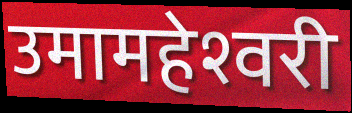
उमामहेश्वरी